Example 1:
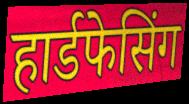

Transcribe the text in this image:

हार्डफेसिंग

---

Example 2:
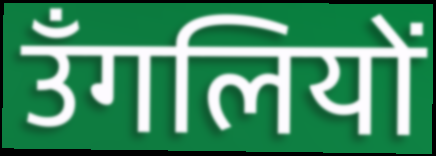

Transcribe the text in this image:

उँगलियों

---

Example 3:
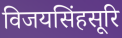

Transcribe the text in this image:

विजयसिंहसूरि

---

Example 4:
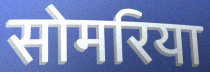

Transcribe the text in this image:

सोमरिया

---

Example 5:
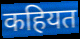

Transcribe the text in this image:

कहियत